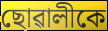
ছোৱালীকে